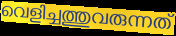
വെളിച്ചത്തുവരുന്നത്